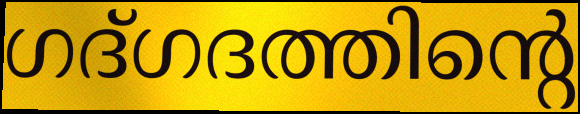
ഗദ്ഗദത്തിന്റെ